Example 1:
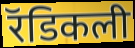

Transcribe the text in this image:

रॅडिकली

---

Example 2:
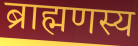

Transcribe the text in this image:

ब्राह्मणस्य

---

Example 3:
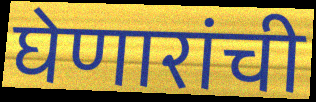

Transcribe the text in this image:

घेणारांची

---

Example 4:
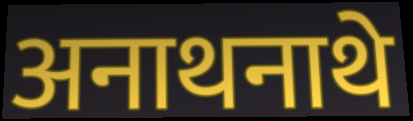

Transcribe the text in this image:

अनाथनाथे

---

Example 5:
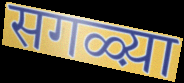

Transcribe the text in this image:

सगळ्य़ा